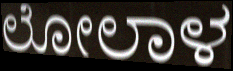
ಲೋಲಾಳ